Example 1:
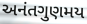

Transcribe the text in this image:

અનંતગુણમય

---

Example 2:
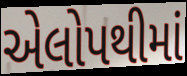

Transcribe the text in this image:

એલોપથીમાં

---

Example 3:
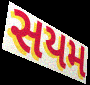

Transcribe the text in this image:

સયમ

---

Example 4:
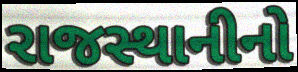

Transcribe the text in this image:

રાજસ્થાનીનો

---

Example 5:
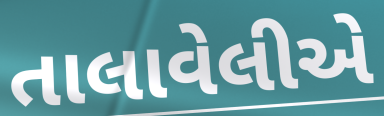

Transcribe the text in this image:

તાલાવેલીએ